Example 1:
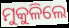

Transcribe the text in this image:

ମୁକୁଳିଲେ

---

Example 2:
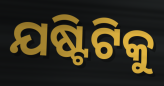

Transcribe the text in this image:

ଯଷ୍ଟିଟିକୁ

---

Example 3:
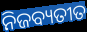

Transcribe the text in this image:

ନିଜବ୍ୟତୀତ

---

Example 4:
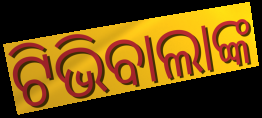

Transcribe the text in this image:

ଟିଭିବାଲାଙ୍କ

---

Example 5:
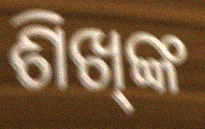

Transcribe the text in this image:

ଶିଖ୍‍ଙ୍କ